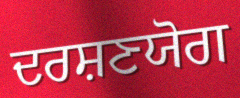
ਦਰਸ਼ਣਯੋਗ